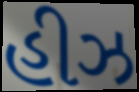
હીઝ